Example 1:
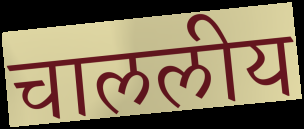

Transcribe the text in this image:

चाललीय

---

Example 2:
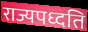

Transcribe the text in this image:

राज्यपध्दति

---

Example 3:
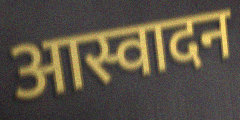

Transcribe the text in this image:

आस्वादन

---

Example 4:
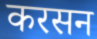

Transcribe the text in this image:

करसन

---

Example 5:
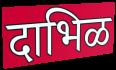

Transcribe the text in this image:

दाभिळ